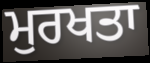
ਮੁਰਖਤਾ